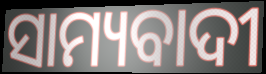
ସାମ୍ୟବାଦୀ